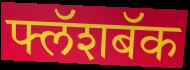
फ्लॅशबॅक